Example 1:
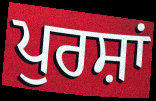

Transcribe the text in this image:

ਪੁਰਸ਼ਾਂ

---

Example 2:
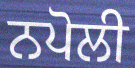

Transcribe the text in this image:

ਨਪੋਲੀ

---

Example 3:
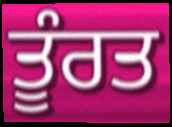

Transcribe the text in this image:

ਤੂੰਰਤ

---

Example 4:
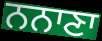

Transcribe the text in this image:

ਨਨਾਣਾ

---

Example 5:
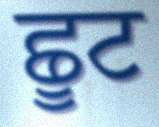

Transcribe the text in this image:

ਛੂਟ